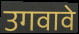
उगवावे